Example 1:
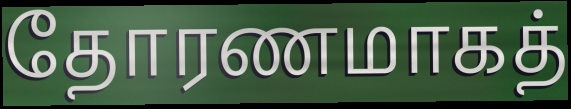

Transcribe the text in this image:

தோரணமாகத்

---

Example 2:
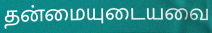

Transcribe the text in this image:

தன்மையுடையவை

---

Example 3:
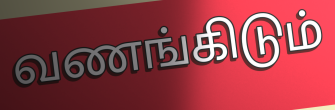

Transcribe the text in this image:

வணங்கிடும்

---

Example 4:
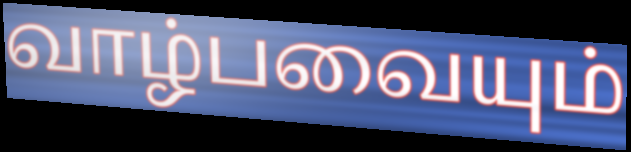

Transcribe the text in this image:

வாழ்பவையும்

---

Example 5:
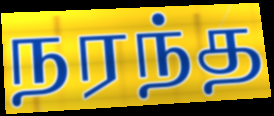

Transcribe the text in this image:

நரந்த